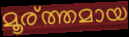
മൂര്ത്തമായ